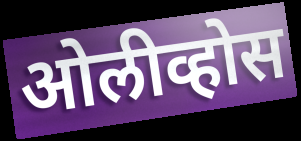
ओलीव्होस